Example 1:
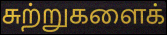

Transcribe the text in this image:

சுற்றுகளைக்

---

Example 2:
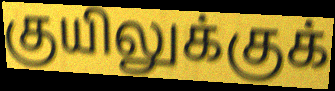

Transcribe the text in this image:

குயிலுக்குக்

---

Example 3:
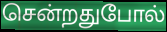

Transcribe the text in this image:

சென்றதுபோல்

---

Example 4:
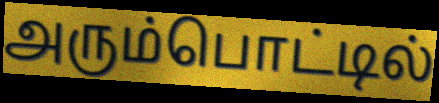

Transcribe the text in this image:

அரும்பொட்டில்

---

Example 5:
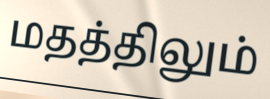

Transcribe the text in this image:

மதத்திலும்